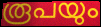
രൂപയും